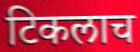
टिकलाच